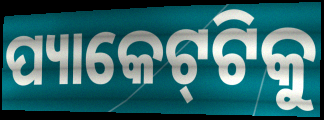
ପ୍ୟାକେଟ୍‌ଟିକୁ